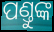
ପଣ୍ତୁଙ୍କ